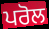
ਪਰੋਲ